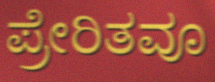
ಪ್ರೇರಿತವೂ